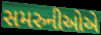
સમરુનીઓએ